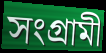
সংগ্রামী